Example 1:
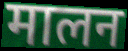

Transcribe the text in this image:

मालन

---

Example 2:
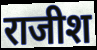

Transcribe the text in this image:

राजीश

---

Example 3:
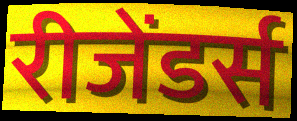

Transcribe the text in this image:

रीजेंडर्स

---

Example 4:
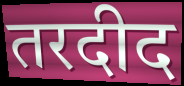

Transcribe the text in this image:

तरदीद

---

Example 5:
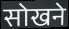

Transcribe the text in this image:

सोखने